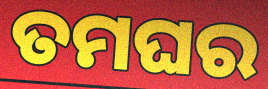
ତମଘର